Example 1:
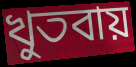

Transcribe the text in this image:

খুতবায়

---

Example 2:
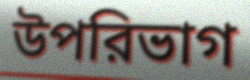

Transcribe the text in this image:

উপরিভাগ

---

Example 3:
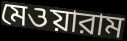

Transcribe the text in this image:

মেওয়ারাম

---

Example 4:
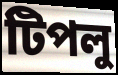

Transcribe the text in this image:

টিপলু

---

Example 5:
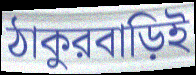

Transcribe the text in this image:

ঠাকুরবাড়িই